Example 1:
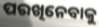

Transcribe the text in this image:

ପରଖିନେବାକୁ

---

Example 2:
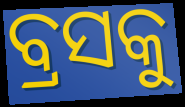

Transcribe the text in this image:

ବ୍ରସକୁ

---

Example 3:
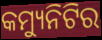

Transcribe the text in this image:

କମ୍ୟୁନିଟିର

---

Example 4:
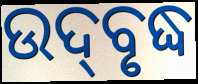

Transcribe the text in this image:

ଉଦ୍‌ବୃଦ୍ଧ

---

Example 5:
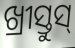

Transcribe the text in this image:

ଖ୍ରୀସ୍ତୁସ୍